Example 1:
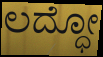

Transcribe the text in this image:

ಲದ್ಧೋ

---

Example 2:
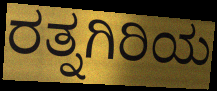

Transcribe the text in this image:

ರತ್ನಗಿರಿಯ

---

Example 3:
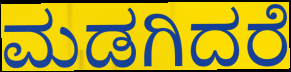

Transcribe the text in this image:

ಮಡಗಿದರೆ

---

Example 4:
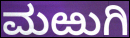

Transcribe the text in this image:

ಮಱುಗಿ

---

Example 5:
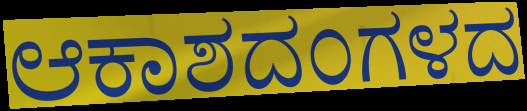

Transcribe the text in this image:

ಆಕಾಶದಂಗಳದ